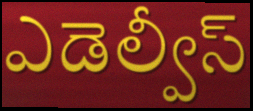
ఎడెల్వీస్